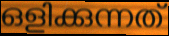
ഒളിക്കുന്നത്